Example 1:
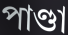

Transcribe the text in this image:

পাণ্ডা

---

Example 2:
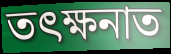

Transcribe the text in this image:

তৎক্ষনাত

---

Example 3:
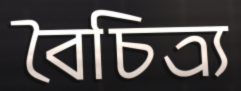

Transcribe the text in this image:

বৈচিত্ৰ্য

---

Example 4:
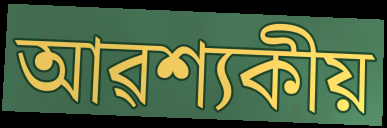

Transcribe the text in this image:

আৱশ্যকীয়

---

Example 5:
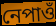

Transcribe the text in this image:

নেপাওঁ